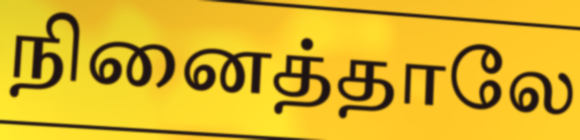
நினைத்தாலே